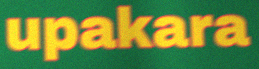
upakara